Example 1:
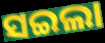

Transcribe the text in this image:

ସଇଲା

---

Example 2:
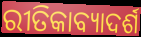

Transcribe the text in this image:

ରୀତିକାବ୍ୟାଦର୍ଶ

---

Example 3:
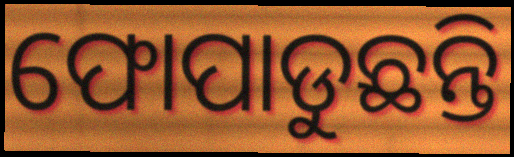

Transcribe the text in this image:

ଫୋପାଡୁଛନ୍ତି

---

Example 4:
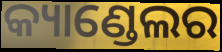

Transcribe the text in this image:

କ୍ୟାଣ୍ଡେଲର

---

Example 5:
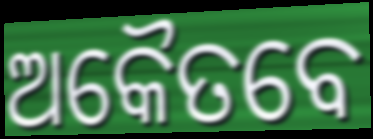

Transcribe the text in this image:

ଅକୈତବେ